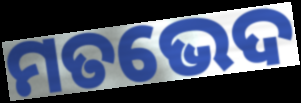
ମତଭେଦ